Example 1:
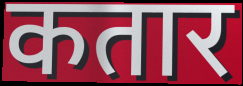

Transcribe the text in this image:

कतार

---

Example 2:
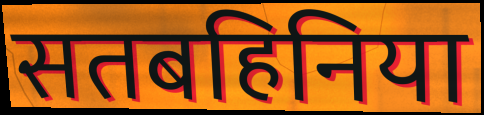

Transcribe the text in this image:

सतबहिनिया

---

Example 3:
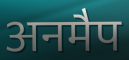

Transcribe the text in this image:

अनमैप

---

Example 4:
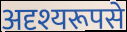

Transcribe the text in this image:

अदृश्यरूपसे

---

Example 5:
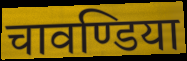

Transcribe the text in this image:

चावण्डिया